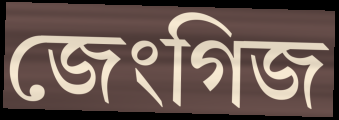
জেংগিজ